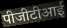
पीजीटीआई